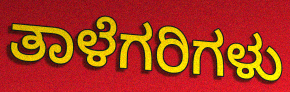
ತಾಳೆಗರಿಗಳು